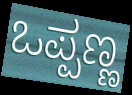
ಒಪ್ಪಣ್ಣ